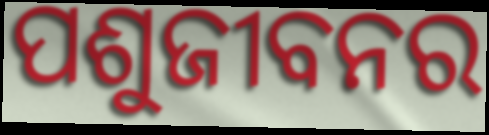
ପଶୁଜୀବନର